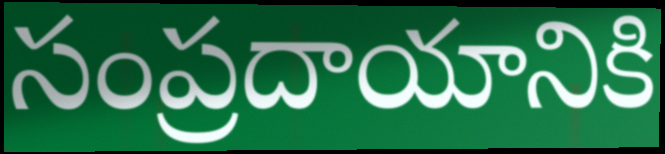
సంప్రదాయానికి